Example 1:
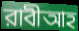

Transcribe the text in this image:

রাবীআহ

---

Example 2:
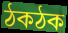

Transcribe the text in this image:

ঠকঠক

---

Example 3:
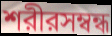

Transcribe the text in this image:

শরীরসম্বন্ধ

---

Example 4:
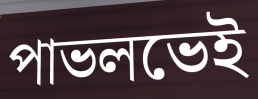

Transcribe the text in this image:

পাভলভেই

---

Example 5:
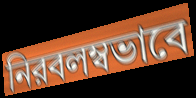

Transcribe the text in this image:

নিরবলম্বভাবে